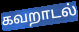
கவறாடல்